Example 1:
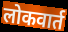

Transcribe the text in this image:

लोकवार्त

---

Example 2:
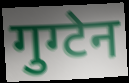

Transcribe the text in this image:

गुग्टेन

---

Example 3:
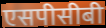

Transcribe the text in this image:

एसपीसीबी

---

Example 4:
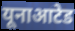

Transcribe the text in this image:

यूनाआटेड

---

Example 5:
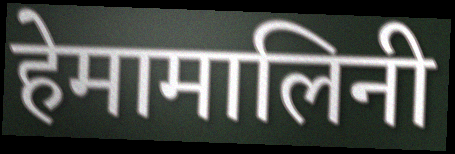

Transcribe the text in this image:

हेमामालिनी